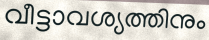
വീട്ടാവശ്യത്തിനും